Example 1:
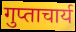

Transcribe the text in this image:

गुप्ताचार्य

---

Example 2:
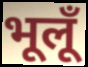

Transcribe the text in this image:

भूलूँ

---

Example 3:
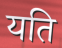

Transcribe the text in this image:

यति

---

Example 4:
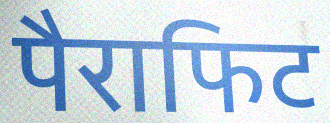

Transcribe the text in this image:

पैराफिट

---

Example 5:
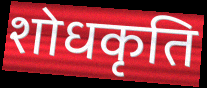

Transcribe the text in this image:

शोधकृति